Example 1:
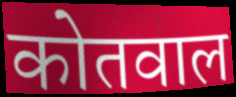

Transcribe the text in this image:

कोतवाल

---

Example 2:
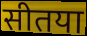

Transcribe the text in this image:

सीतया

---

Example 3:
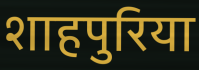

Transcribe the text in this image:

शाहपुरिया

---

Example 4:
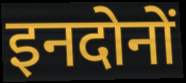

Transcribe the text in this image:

इनदोनों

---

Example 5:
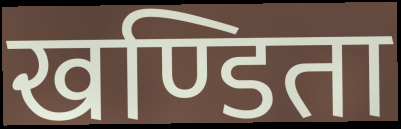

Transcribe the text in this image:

खण्डिता